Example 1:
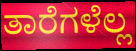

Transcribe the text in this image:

ತಾರೆಗಳೆಲ್ಲ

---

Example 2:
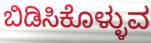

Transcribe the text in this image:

ಬಿಡಿಸಿಕೊಳ್ಳುವ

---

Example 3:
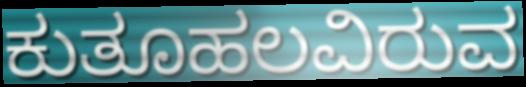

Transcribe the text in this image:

ಕುತೂಹಲವಿರುವ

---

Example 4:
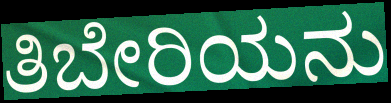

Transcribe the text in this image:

ತಿಬೇರಿಯನು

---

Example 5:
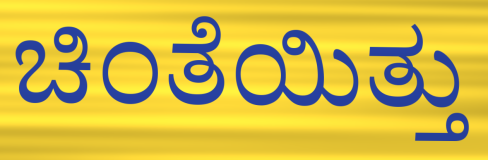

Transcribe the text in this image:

ಚಿಂತೆಯಿತ್ತು